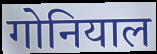
गोनियाल